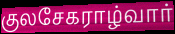
குலசேகராழ்வார்